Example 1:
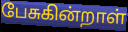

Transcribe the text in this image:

பேசுகின்றாள்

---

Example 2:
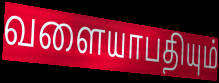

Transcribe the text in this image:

வளையாபதியும்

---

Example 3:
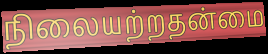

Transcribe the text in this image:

நிலையற்றதன்மை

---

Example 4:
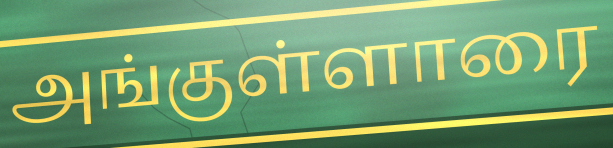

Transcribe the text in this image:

அங்குள்ளாரை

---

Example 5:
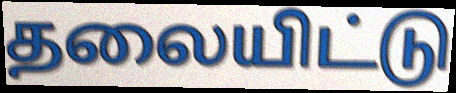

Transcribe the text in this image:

தலையிட்டு